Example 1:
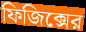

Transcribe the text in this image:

ফিজিক্সের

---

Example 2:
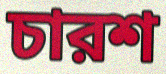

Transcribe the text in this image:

চারশ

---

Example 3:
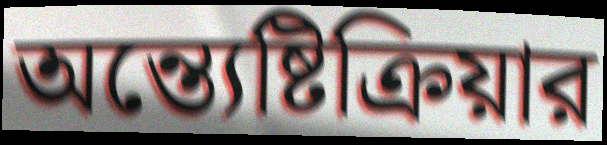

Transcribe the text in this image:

অন্ত্যেষ্টিক্রিয়ার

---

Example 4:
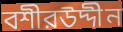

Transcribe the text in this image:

বশীরউদ্দীন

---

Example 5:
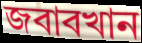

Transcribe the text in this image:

জবাবখান